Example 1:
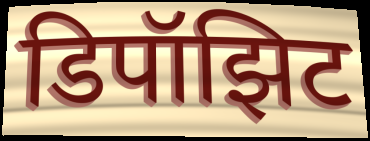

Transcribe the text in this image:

डिपॉझिट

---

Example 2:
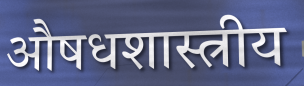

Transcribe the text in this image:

औषधशास्त्रीय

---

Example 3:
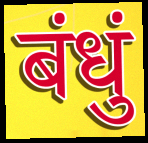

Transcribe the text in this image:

बंधुं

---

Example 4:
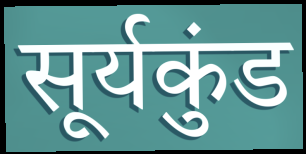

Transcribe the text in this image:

सूर्यकुंड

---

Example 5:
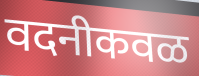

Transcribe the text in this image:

वदनीकवळ